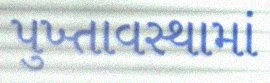
પુખ્તાવસ્થામાં